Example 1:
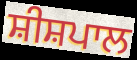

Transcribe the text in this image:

ਸ਼ੀਸ਼ਪਾਲ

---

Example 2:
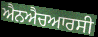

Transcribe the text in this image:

ਐਨਐਚਆਰਸੀ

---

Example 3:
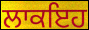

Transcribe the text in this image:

ਲਾਕਇਹ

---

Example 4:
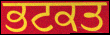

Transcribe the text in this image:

ਭਟਕਤ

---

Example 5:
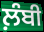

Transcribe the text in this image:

ਲ਼ੰਬੀ